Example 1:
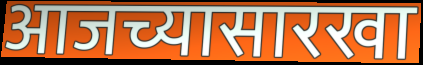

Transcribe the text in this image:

आजच्यासारखा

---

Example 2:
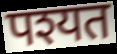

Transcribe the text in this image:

पश्यत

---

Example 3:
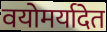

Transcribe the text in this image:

वयोमर्यादेत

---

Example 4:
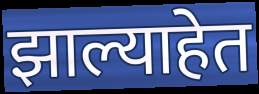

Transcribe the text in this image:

झाल्याहेत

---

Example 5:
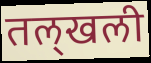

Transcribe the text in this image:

तल्खली